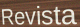
Revista